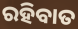
ରହିବାତ